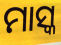
ମାସ୍କ